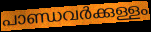
പാണ്ഡവർക്കുള്ളം